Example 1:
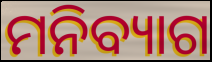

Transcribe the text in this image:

ମନିବ୍ୟାଗ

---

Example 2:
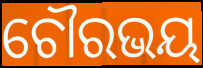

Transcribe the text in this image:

ଚୌରଭୟ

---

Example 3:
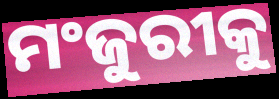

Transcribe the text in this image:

ମଂଜୁରୀକୁ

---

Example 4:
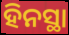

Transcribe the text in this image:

ହିନସ୍ଥା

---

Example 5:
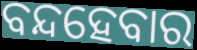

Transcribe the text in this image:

ବନ୍ଦହେବାର